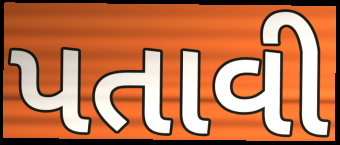
પતાવી